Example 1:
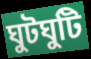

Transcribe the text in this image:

ঘুটঘুটি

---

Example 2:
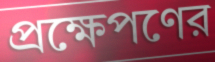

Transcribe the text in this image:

প্রক্ষেপণের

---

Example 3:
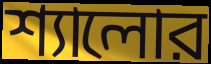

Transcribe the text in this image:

শ্যালোর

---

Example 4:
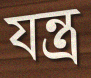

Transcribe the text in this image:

যন্ত্র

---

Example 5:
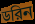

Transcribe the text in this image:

ডরিন